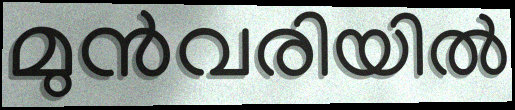
മുൻവരിയിൽ